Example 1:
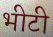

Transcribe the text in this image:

भीटी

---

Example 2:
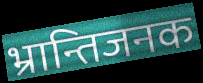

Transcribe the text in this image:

भ्रान्तिजनक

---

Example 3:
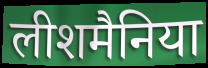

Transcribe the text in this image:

लीशमैनिया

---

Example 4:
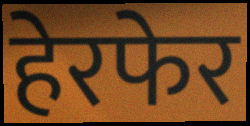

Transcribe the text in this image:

हेरफेर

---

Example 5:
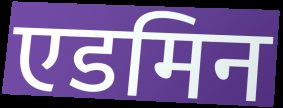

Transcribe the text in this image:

एडमिन